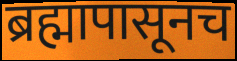
ब्रह्मापासूनच